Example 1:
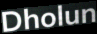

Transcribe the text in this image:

Dholun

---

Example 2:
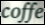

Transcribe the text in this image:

coffe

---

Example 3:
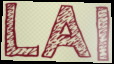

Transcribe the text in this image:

LAI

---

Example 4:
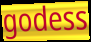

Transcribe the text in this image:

godess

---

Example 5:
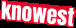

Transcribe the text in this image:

knowest